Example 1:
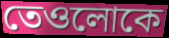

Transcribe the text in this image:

তেওলোকে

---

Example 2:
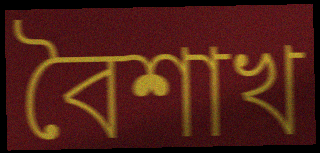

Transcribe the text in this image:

বৈশাখ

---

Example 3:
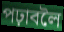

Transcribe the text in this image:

পঢ়াবলৈ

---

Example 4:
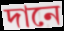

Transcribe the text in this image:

দানে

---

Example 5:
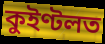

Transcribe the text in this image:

কুইণ্টলত